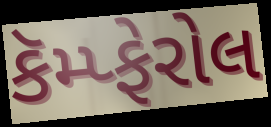
કૅમ્પ્ફેરોલ